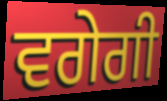
ਵਗੇਗੀ